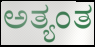
ಅತ್ಯಂತ